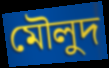
মৌলুদ